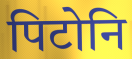
पिटोनि